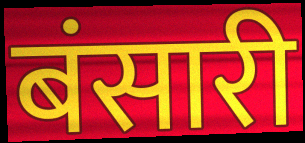
बंसारी